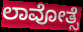
ಲಾವೋತ್ಸೆ